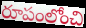
రూపంలోంచి